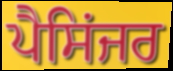
ਪੈਸਿਂਜਰ